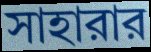
সাহারার